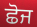
ਛੋਜ